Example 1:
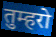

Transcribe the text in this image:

तुम्हरो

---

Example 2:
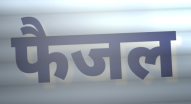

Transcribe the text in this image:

फैजल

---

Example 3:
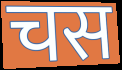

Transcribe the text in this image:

चस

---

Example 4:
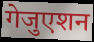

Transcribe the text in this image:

गेजुएशन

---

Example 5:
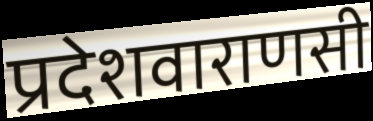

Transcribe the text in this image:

प्रदेशवाराणसी